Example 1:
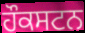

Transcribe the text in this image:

ਹੌਕਸਟਨ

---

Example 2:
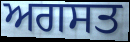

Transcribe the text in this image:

ਅਗਸਤ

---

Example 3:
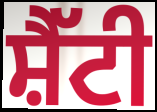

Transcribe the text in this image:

ਸ਼ੈੱਟੀ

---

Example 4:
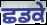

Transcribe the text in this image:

ਛਡਕੇ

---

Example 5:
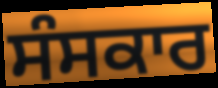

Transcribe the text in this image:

ਸੰਸਕਾਰ